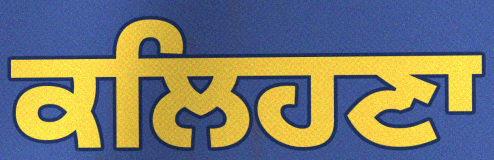
ਕਲਿਹਣਾ